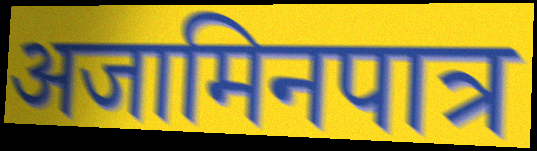
अजामिनपात्र